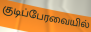
குடிப்பேரவையில்